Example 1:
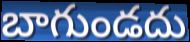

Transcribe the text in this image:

బాగుండదు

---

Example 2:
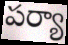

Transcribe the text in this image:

పర్యా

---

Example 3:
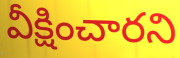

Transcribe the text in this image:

వీక్షించారని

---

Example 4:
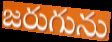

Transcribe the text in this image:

జరుగును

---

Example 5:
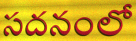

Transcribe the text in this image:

సదనంలో